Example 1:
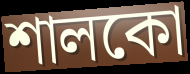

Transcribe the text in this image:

শালকো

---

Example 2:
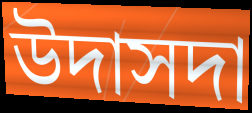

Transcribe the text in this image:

উদাসদা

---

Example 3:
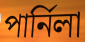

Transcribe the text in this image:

পার্নিলা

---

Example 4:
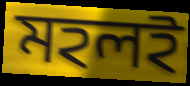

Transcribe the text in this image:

মহলই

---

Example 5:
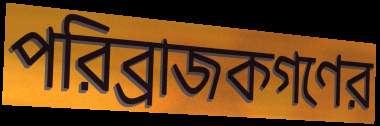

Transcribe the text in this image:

পরিব্রাজকগণের